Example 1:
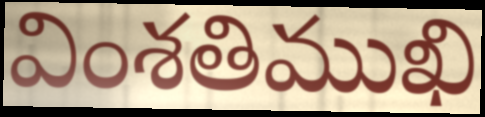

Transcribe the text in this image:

వింశతిముఖి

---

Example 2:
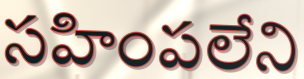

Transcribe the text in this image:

సహింపలేని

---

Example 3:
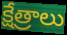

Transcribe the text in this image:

క్షేత్రాలు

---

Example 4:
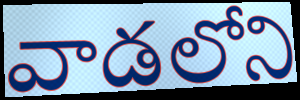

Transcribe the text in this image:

వాడలోని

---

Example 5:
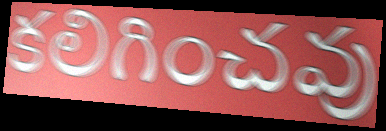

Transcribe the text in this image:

కలిగించవు